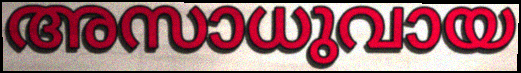
അസാധുവായ